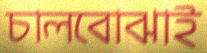
চালবোঝাই